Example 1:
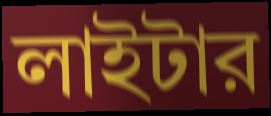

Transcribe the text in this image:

লাইটার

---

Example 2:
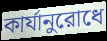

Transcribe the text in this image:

কার্যানুরোধে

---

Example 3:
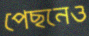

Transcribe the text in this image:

পেছনেও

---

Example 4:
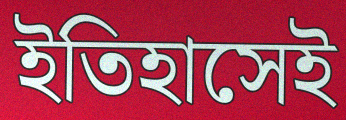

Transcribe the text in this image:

ইতিহাসেই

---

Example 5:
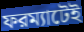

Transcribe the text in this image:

ফরম্যাটেই